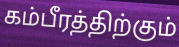
கம்பீரத்திற்கும்